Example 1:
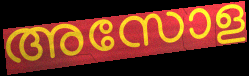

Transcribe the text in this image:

അസോള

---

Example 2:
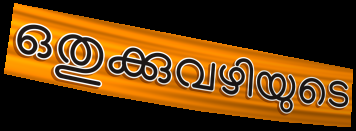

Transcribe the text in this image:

ഒതുക്കുവഴിയുടെ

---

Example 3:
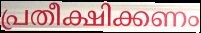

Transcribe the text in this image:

പ്രതീക്ഷിക്കണം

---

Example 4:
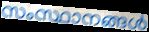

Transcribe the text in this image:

സംസ്ഥാനങ്ങൾ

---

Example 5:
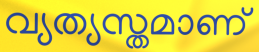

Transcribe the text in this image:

വ്യത്യസ്തമാണ്